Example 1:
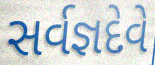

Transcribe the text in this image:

સર્વજ્ઞદેવે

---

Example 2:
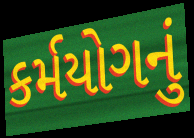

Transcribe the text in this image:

કર્મયોગનું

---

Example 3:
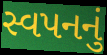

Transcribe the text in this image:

સ્વપનનું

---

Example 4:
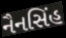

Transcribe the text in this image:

નૈનસિંહ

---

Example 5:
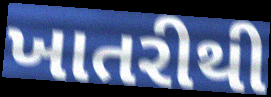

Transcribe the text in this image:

ખાતરીથી